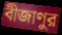
বীজাণুর